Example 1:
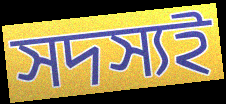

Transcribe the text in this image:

সদস্যই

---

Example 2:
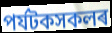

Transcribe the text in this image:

পৰ্যটকসকলৰ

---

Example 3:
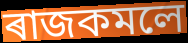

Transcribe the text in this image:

ৰাজকমলে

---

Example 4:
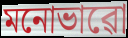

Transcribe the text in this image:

মনোভাৱো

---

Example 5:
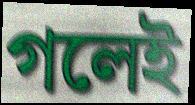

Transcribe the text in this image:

গলেই